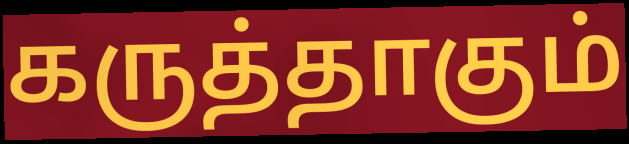
கருத்தாகும்